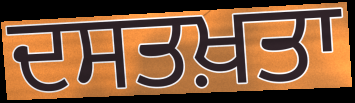
ਦਸਤਖ਼ਤਾ